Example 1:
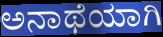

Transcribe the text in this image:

ಅನಾಥೆಯಾಗಿ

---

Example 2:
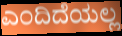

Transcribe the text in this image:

ಎಂದಿದೆಯಲ್ಲ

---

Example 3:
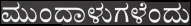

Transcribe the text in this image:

ಮುಂದಾಳುಗಳೆಂದು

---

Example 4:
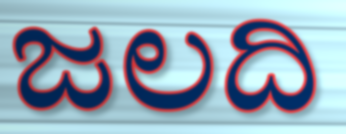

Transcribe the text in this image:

ಜಲದಿ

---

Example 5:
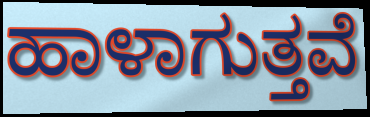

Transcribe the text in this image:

ಹಾಳಾಗುತ್ತವೆ